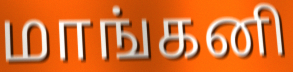
மாங்கனி